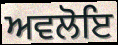
ਅਵਲੋਇ